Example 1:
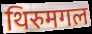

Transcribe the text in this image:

थिरुमगल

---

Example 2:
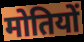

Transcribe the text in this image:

मोतियों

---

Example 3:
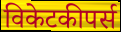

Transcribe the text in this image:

विकेटकीपर्स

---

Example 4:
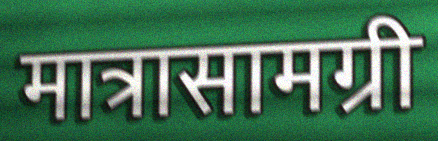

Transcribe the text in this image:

मात्रासामग्री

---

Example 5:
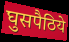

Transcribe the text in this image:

घुसपैठिये